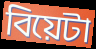
বিয়েটা